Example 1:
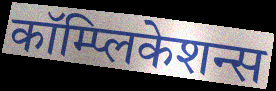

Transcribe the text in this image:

कॉम्प्लिकेशन्स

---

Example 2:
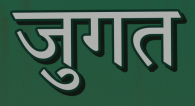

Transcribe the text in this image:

जुगत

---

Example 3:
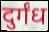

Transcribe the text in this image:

दुर्गंध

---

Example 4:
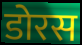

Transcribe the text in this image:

डोरस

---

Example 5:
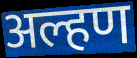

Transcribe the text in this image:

अल्हण